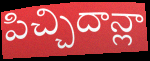
పిచ్చిదాన్లా